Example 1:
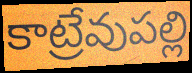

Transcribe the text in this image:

కాట్రేవుపల్లి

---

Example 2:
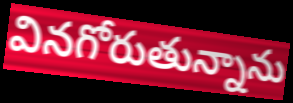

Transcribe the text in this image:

వినగోరుతున్నాను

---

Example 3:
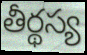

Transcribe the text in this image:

తీర్థస్య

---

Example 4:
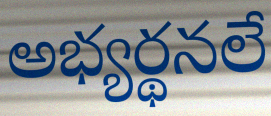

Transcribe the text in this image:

అభ్యర్థనలే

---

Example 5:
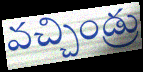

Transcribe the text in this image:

వచ్చిండ్రు